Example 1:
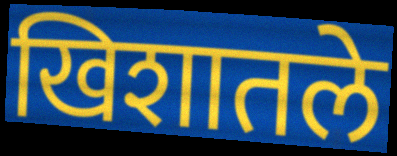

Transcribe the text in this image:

खिशातले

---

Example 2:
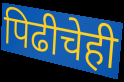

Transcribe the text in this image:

पिढीचेही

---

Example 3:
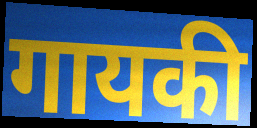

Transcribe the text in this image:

गायकी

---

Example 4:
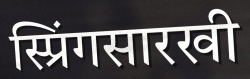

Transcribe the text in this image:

स्प्रिंगसारखी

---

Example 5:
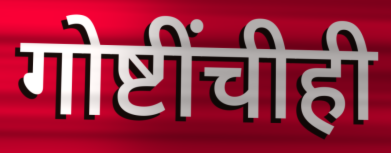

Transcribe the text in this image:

गोष्टींचीही